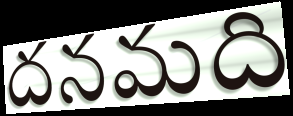
దనమది